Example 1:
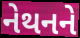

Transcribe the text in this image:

નેથનને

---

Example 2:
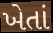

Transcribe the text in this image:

ખેતાં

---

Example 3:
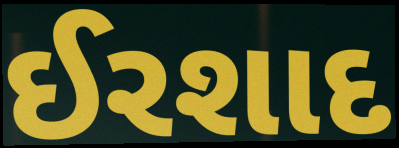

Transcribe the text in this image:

ઈરશાદ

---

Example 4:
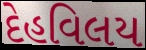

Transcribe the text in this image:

દેહવિલય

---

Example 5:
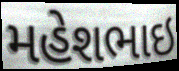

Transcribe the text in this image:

મહેશભાઇ